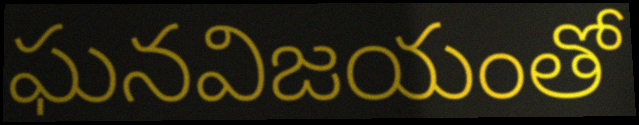
ఘనవిజయంతో